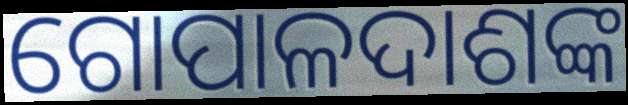
ଗୋପାଳଦାଶଙ୍କ